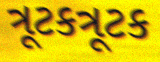
ત્રૂટકત્રૂટક